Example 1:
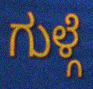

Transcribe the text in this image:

ಗುಳ್ಗೆ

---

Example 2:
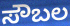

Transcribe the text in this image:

ಸೌಬಲ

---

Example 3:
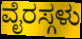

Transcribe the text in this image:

ವೈರಸ್ಗಳು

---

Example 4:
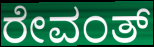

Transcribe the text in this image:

ರೇವಂತ್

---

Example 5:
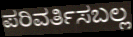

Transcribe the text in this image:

ಪರಿವರ್ತಿಸಬಲ್ಲ